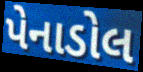
પેનાડોલ